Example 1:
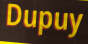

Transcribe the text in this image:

Dupuy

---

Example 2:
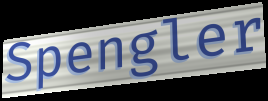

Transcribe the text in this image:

Spengler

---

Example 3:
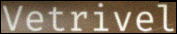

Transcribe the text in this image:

Vetrivel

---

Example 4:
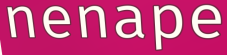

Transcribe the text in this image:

nenape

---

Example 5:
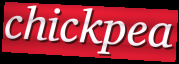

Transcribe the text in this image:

chickpea